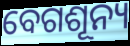
ବେଗଶୂନ୍ୟ